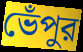
ভেঁপুর